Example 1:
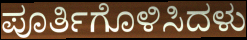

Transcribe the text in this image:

ಪೂರ್ತಿಗೊಳಿಸಿದಳು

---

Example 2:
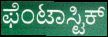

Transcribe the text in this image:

ಫೆಂಟಾಸ್ಟಿಕ್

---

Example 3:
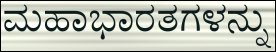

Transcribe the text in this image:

ಮಹಾಭಾರತಗಳನ್ನು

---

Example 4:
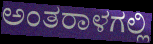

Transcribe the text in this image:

ಅಂತರಾಳಗಲ್ಲಿ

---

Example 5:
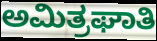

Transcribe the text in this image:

ಅಮಿತ್ರಘಾತಿ